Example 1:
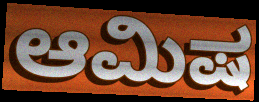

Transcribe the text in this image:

ಆಮಿಷ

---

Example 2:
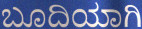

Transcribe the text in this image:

ಬೂದಿಯಾಗಿ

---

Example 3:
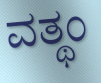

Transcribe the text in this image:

ವತ್ಥಂ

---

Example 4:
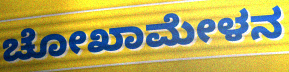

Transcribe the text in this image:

ಚೋಖಾಮೇಳನ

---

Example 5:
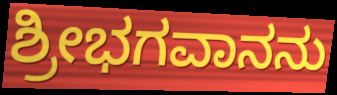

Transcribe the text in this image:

ಶ್ರೀಭಗವಾನನು